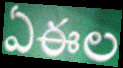
ఏఈల